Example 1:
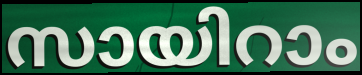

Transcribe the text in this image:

സായിറാം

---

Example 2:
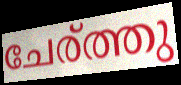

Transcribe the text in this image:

ചേര്ത്തു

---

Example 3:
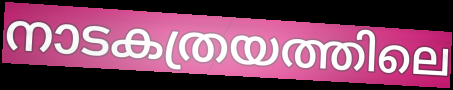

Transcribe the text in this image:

നാടകത്രയത്തിലെ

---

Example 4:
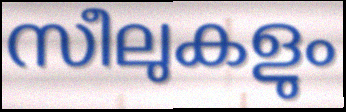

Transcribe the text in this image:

സീലുകളും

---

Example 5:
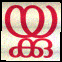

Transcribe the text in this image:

യ്ക്കു